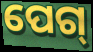
ପେଗ୍